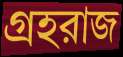
গ্রহরাজ